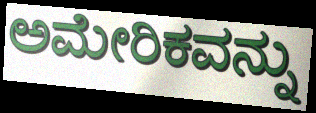
ಅಮೇರಿಕವನ್ನು